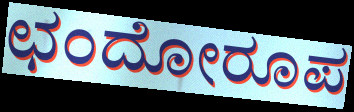
ಛಂದೋರೂಪ